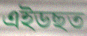
এইডছত